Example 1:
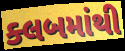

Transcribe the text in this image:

ક્લબમાંથી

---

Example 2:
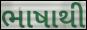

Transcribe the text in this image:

ભાષાથી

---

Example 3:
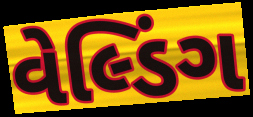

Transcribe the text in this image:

વેલ્ડિંગ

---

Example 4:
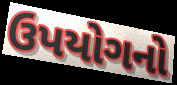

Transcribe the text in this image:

ઉપયોગનો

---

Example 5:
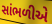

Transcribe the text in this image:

સાંભળીએ